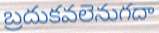
బ్రదుకవలెనుగదా